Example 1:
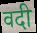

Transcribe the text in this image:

वदी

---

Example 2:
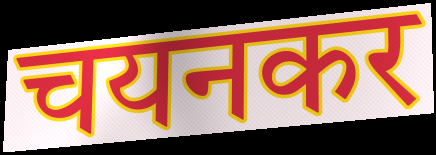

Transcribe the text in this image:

चयनकर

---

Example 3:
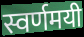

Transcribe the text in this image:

स्वर्णमयी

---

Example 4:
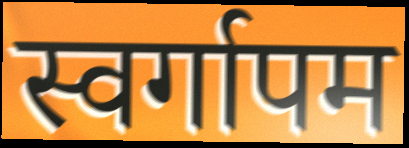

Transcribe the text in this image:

स्वर्गापम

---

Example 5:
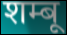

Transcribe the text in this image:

शम्बू